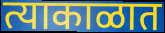
त्याकाळात